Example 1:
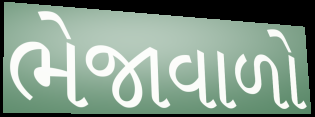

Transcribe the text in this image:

ભેજાવાળો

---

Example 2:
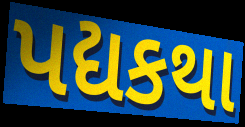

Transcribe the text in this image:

પદ્યકથા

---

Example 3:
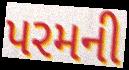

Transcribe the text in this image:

પરમની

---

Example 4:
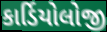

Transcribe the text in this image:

કાર્ડિયોલોજી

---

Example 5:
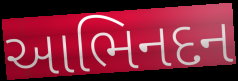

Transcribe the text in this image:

આભિનદન